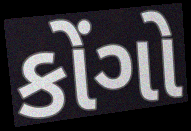
કોંગો